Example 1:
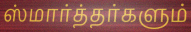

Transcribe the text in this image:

ஸ்மார்த்தர்களும்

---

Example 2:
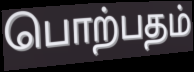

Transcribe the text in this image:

பொற்பதம்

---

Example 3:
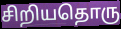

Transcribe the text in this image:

சிறியதொரு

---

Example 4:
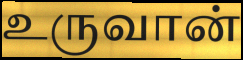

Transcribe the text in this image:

உருவான்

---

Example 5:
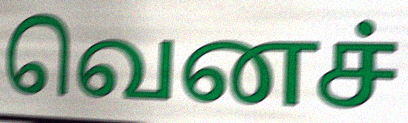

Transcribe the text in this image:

வெனச்